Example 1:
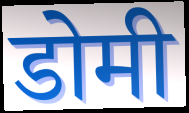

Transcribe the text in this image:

डोमी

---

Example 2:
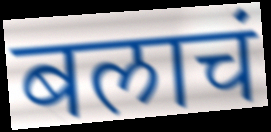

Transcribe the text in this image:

बलाचं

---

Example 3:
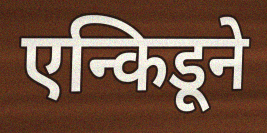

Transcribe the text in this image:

एन्किडूने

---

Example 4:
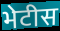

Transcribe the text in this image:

भेटीस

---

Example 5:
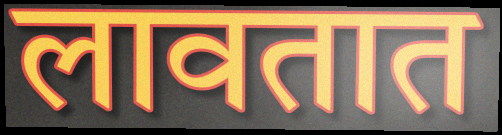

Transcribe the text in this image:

लावतात